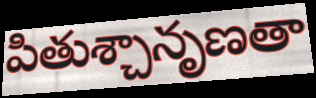
పితుశ్చానృణతా